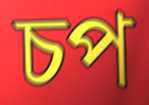
চপ